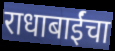
राधाबाईंचा